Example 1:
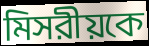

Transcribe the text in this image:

মিসরীয়কে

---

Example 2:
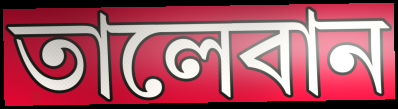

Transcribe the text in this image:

তালেবান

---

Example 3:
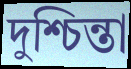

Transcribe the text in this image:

দুশ্চিন্তা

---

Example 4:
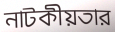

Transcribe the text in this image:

নাটকীয়তার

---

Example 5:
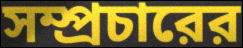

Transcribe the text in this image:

সম্প্রচারের